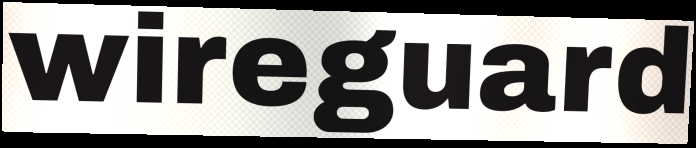
wireguard